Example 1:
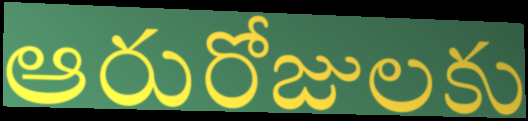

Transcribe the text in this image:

ఆరురోజులకు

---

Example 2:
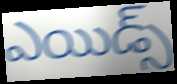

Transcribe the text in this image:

ఎయిడ్స్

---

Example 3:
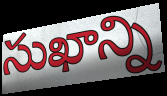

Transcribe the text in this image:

సుఖాన్ని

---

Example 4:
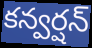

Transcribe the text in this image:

కన్వర్షన్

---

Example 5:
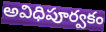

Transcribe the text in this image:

అవిధిపూర్వకం